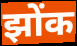
झोंक